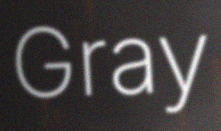
Gray